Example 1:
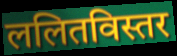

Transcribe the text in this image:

ललितविस्तर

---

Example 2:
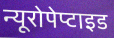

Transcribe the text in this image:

न्यूरोपेप्टाइड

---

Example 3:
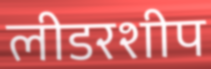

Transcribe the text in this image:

लीडरशीप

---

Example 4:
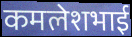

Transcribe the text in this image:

कमलेशभाई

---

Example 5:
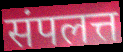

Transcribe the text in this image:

संपलत्त